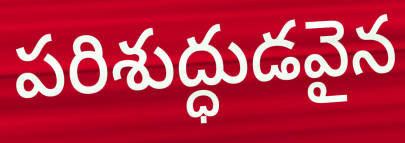
పరిశుద్ధుడవైన